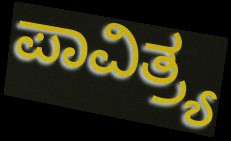
ಪಾವಿತ್ರ್ಯ